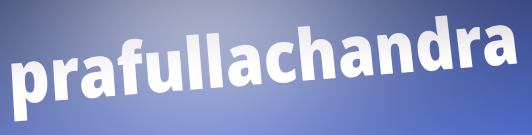
prafullachandra